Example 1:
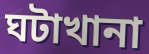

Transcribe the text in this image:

ঘটাখানা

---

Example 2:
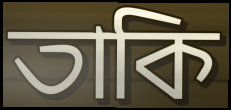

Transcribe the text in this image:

তাকি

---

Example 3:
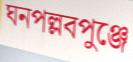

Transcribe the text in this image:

ঘনপল্লবপুঞ্জে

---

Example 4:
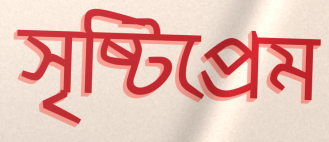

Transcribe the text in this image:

সৃষ্টিপ্রেম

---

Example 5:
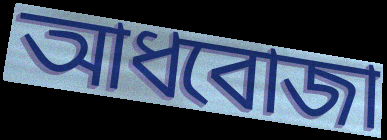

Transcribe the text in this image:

আধবোজা